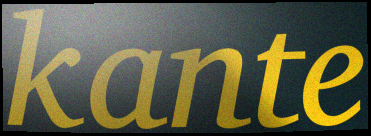
kante